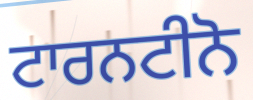
ਟਾਰਨਟੀਨੋ